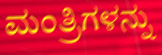
ಮಂತ್ರಿಗಳನ್ನು